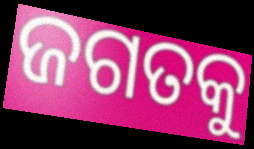
ଜଗତକୁ